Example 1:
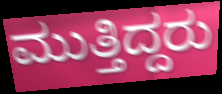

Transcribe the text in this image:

ಮುತ್ತಿದ್ದರು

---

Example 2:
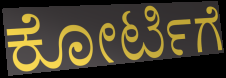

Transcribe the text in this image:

ಕೋರ್ಟಿಗೆ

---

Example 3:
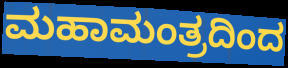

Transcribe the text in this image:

ಮಹಾಮಂತ್ರದಿಂದ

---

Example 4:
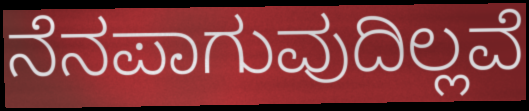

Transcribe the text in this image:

ನೆನಪಾಗುವುದಿಲ್ಲವೆ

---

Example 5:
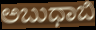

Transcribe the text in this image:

ಅಬುಧಾಬಿ